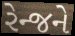
રેન્જને